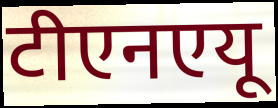
टीएनएयू